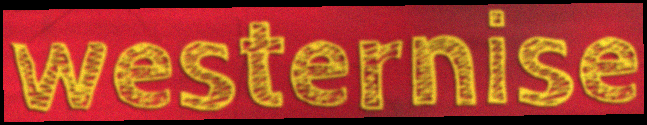
westernise